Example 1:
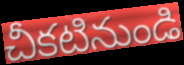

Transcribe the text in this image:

చీకటినుండి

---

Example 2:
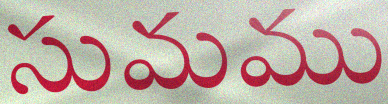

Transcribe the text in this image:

సుమము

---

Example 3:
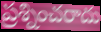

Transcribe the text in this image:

ప్రశ్నించరాదు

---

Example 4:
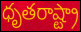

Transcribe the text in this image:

ధృతరాష్ట్రా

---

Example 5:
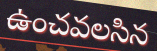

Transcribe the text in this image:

ఉంచవలసిన